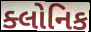
ક્લોનિક